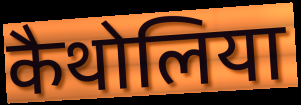
कैथोलिया